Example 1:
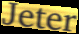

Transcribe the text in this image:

Jeter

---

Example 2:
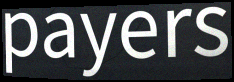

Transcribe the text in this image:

payers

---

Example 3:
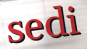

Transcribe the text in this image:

sedi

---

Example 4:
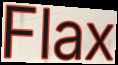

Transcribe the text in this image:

Flax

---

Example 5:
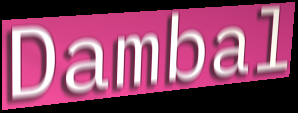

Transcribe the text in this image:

Dambal